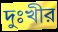
দুঃখীর